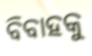
ବିବାହକୁ